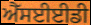
ਐੱਸਈਈਡੀ